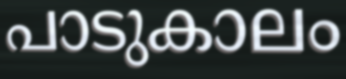
പാടുകാലം